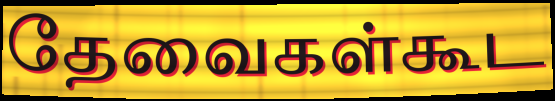
தேவைகள்கூட